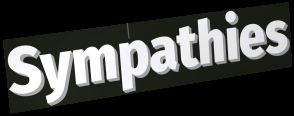
Sympathies